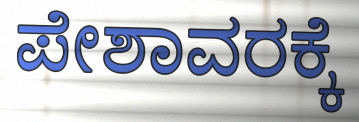
ಪೇಶಾವರಕ್ಕೆ